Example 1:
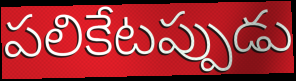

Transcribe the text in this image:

పలికేటప్పుడు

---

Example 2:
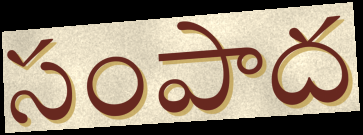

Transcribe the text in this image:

సంపాద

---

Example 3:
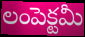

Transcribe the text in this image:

లంపెక్టమీ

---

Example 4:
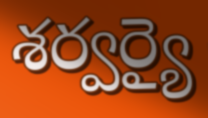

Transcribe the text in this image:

శర్వర్యై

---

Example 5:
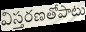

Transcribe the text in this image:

విస్తరణతోపాటు